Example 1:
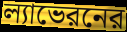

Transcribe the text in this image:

ল্যাভেরনের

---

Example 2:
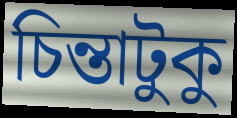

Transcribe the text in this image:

চিন্তাটুকু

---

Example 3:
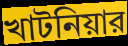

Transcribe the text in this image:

খাটনিয়ার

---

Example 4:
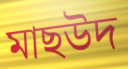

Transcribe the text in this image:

মাছউদ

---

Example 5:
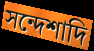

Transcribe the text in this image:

সন্দেশাদি